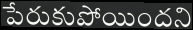
పేరుకుపోయిందని